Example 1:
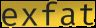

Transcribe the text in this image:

exfat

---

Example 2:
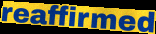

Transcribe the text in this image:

reaffirmed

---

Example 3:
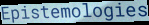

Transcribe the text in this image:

Epistemologies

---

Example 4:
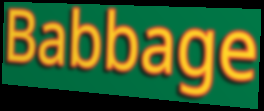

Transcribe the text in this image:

Babbage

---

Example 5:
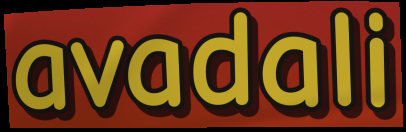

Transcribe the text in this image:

avadali